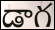
డాగ